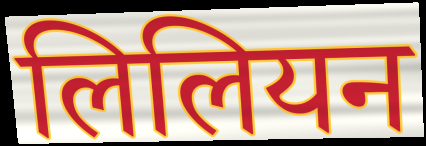
लिलियन